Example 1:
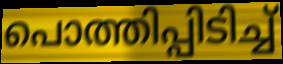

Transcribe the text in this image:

പൊത്തിപ്പിടിച്ച്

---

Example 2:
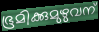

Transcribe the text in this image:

ഭൂമിക്കുമുഴുവന്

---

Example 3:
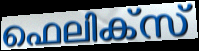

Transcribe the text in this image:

ഫെലിക്‌സ്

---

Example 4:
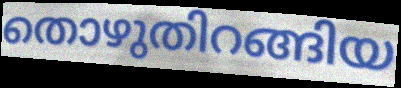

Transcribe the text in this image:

തൊഴുതിറങ്ങിയ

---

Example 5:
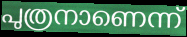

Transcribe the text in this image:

പുത്രനാണെന്ന്